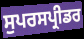
ਸੁਪਰਸਪ੍ਰੀਡਰ